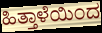
ಹಿತ್ತಾಳೆಯಿಂದ